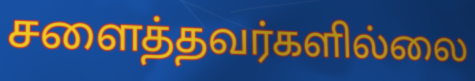
சளைத்தவர்களில்லை